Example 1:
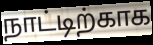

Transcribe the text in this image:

நாட்டிற்காக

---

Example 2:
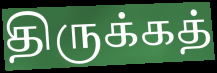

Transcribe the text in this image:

திருக்கத்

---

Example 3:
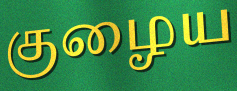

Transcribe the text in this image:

குழைய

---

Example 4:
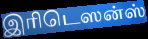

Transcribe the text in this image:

இரிடெஸன்ஸ்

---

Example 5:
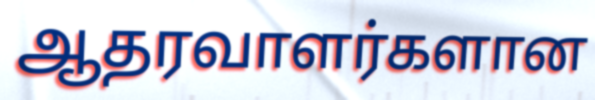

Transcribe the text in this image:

ஆதரவாளர்களான